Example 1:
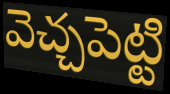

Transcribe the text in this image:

వెచ్చపెట్టి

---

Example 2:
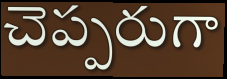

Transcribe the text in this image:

చెప్పరుగా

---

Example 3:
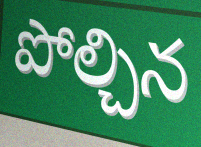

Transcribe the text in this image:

పోల్చిన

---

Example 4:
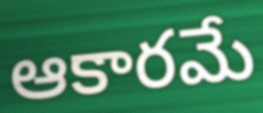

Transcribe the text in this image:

ఆకారమే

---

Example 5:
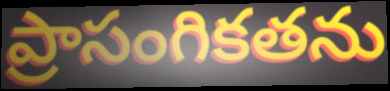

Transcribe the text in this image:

ప్రాసంగికతను